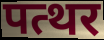
पत्थर